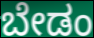
ಬೇಡಂ